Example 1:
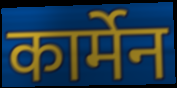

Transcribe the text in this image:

कार्मेन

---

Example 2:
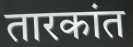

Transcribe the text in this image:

तारकांत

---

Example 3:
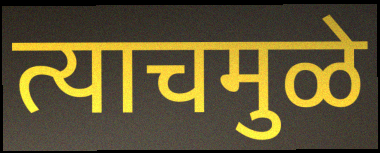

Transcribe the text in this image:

त्याचमुळे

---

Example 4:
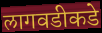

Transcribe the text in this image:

लागवडीकडे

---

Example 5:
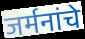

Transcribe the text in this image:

जर्मनांचे